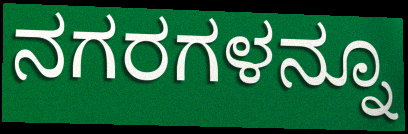
ನಗರಗಳನ್ನೂ